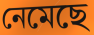
নেমেছে